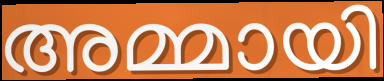
അമ്മായി